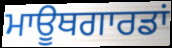
ਮਾਊਥਗਾਰਡਾਂ